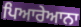
ਪਿਆਰੇਆਨਾ